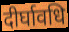
दीर्घावधि